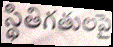
స్థితిగతులపై